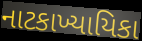
નાટકાખ્યાયિકા